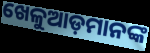
ଖେଳୁଆଡ଼ମାନଙ୍କ